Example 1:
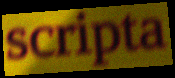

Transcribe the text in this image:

scripta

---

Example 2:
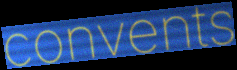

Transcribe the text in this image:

convents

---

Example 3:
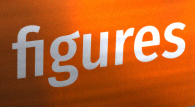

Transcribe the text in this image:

figures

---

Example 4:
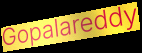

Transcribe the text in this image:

Gopalareddy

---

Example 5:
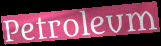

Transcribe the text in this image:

Petroleum